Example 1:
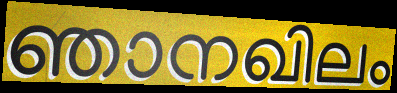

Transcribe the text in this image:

ഞാനഖിലം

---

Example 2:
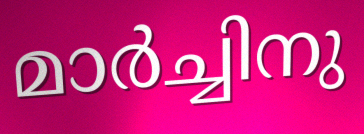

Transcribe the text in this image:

മാർച്ചിനു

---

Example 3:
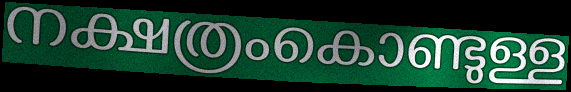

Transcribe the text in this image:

നക്ഷത്രംകൊണ്ടുള്ള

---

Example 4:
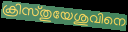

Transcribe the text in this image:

ക്രിസ്തുയേശുവിനെ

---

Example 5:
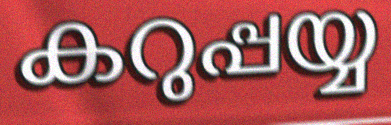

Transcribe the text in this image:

കറുപ്പയ്യ